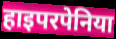
हाइपरपेनिया